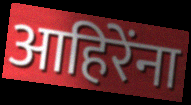
आहिरेंना